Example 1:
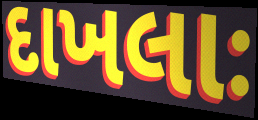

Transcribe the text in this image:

દાખલાઃ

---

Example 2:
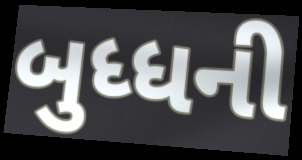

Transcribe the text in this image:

બુધ્ધની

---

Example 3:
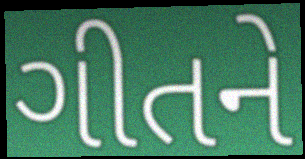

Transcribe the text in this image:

ગીતને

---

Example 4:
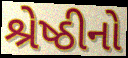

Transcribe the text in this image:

શ્રેષ્ઠીનો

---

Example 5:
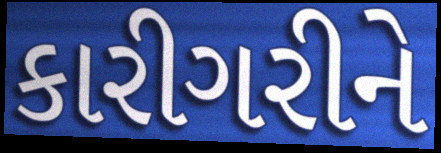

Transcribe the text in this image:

કારીગરીને